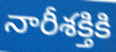
నారీశక్తికి